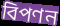
বিপণন